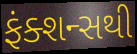
ફંક્શન્સથી